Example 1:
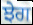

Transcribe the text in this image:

ਝੇਗ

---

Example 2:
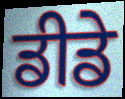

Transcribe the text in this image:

ਡੀਡੇ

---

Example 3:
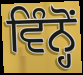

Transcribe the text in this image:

ਵਿੰਨ੍ਹੋਂ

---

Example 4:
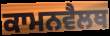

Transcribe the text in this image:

ਕਾਮਨਵੈਲਥ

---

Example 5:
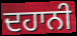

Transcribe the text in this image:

ਦਹਾਨੀ